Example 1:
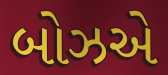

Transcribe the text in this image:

બોઝએ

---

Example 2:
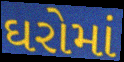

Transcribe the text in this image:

ઘરોમાં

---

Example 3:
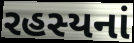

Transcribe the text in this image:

રહસ્યનાં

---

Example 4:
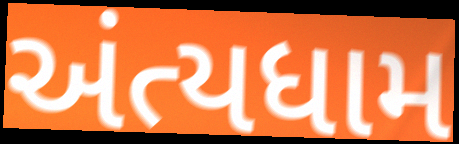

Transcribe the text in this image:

અંત્યધામ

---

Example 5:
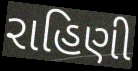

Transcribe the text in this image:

રાહિણી